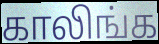
காலிங்க